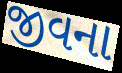
જીવના